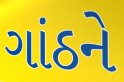
ગાંઠને